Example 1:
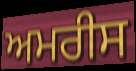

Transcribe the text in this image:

ਅਮਰੀਸ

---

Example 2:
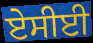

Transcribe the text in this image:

ਏਸੀਈ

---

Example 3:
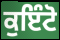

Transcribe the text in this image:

ਕੁਇੰਟੋ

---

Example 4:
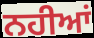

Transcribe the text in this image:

ਨਹੀਆਂ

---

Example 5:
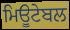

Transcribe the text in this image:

ਮਿਊਟੇਬਲ